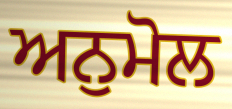
ਅਨੁਮੋਲ